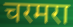
चरमरा